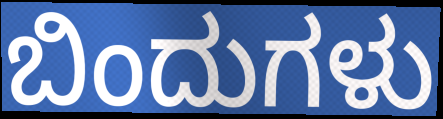
ಬಿಂದುಗಳು